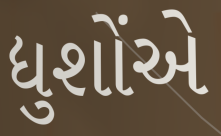
દ્યુશોંએ